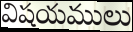
విషయములు